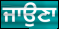
ਜਾਉਣਾ